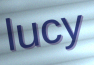
lucy